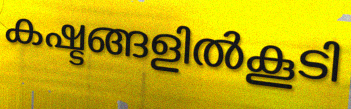
കഷ്ടങ്ങളിൽകൂടി